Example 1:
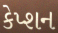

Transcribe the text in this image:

કેપ્શન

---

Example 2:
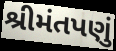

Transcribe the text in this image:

શ્રીમંતપણું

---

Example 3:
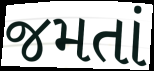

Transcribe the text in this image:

જમતાં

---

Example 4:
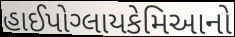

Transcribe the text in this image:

હાઈપોગ્લાયકેમિઆનો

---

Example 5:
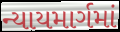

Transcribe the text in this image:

ન્યાયમાર્ગમાં